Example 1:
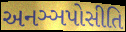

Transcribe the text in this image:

અનઞ્ઞપોસીતિ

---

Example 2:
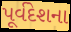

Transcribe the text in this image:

પૂર્વદેશના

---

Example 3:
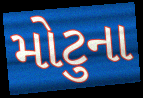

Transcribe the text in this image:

મોટુના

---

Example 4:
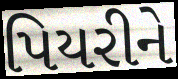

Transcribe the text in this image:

પિયરીને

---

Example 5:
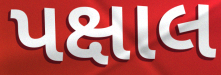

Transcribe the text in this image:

પક્ષાલ